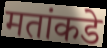
मतांकडे